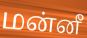
மன்னீ